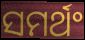
ସମର୍ଥଂ